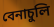
বেনাচুলি